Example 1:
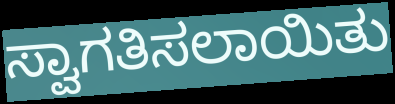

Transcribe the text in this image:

ಸ್ವಾಗತಿಸಲಾಯಿತು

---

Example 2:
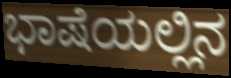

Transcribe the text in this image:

ಭಾಷೆಯಲ್ಲಿನ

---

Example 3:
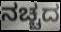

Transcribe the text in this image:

ನಚ್ಚದ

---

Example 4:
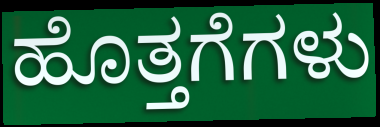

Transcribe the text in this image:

ಹೊತ್ತಗೆಗಳು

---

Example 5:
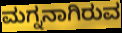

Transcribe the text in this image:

ಮಗ್ನನಾಗಿರುವ